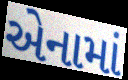
એનામાં